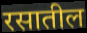
रसातील